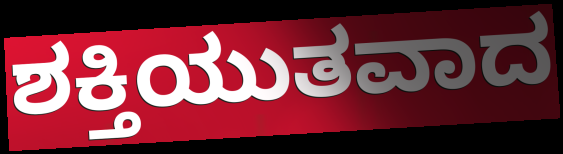
ಶಕ್ತಿಯುತವಾದ